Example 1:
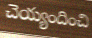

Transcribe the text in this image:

చెయ్యందించి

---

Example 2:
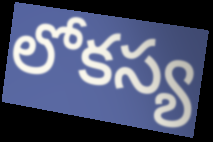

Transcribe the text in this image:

లోకస్య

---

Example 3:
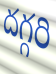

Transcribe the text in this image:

దగ్గరి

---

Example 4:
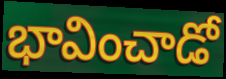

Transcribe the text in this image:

భావించాడో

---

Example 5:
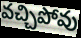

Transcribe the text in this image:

వచ్చిపోవు